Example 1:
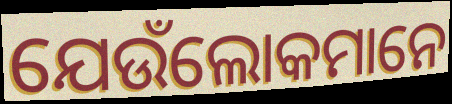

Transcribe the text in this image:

ଯେଉଁଲୋକମାନେ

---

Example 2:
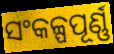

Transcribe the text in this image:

ସଂକଳ୍ପପୂର୍ଣ୍ଣ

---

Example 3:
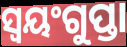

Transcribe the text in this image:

ସ୍ୱୟଂଗୁପ୍ତା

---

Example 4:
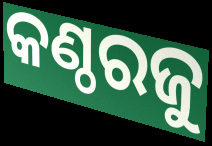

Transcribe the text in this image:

କଣ୍ଠରଜୁ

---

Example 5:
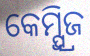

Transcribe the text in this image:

କେମ୍ପ୍ୱ୍ରିଜ